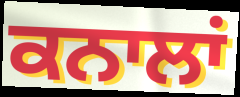
ਕਨਾਲਾਂ